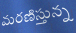
మరణిస్తున్న